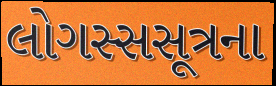
લોગસ્સસૂત્રના